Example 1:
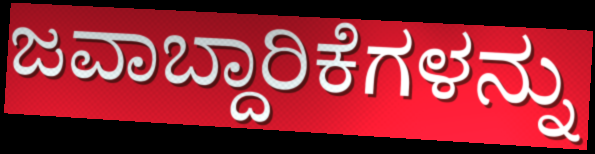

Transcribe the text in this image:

ಜವಾಬ್ದಾರಿಕೆಗಳನ್ನು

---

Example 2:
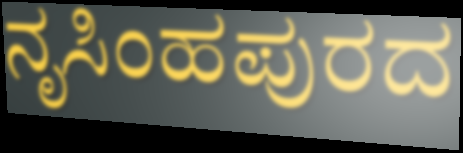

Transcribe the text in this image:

ನೃಸಿಂಹಪುರದ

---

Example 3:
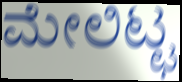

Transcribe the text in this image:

ಮೇಲಿಟ್ಟ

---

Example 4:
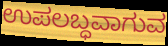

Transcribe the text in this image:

ಉಪಲಬ್ಧವಾಗುವ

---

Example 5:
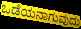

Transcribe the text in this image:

ಒಡೆಯನಾಗುವುದು